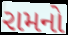
રામનો